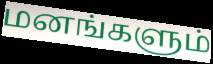
மனங்களும்